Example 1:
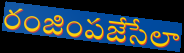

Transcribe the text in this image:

రంజింపజేసేలా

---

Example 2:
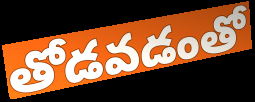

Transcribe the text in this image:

తోడవడంతో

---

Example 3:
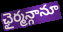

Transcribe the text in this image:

ఛైర్మన్గానూ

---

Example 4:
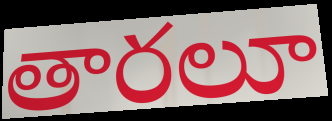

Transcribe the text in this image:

తారలూ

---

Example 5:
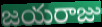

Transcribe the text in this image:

జయరాజు